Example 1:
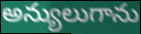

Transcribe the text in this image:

అన్యులుగాను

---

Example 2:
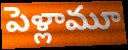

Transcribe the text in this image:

పెళ్లామూ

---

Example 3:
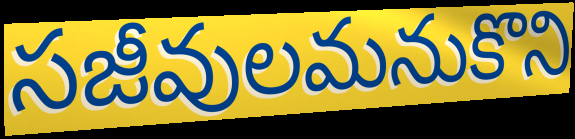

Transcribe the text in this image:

సజీవులమనుకొని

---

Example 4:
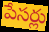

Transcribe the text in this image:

పేసర్లు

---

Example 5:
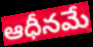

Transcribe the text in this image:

ఆధీనమే